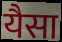
यैसा